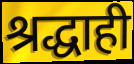
श्रद्धाही